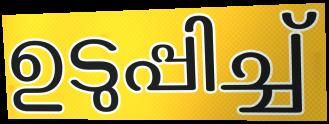
ഉടുപ്പിച്ച്